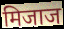
मिजाज